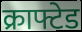
क्राफ्टेड